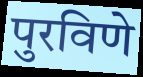
पुरविणे